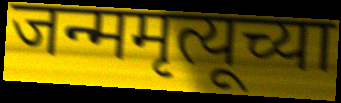
जन्ममृत्यूच्या